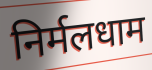
निर्मलधाम